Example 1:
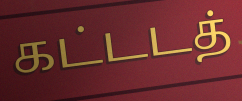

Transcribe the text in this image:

கட்டடத்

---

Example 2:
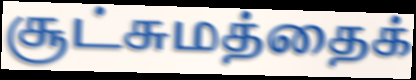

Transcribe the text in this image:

சூட்சுமத்தைக்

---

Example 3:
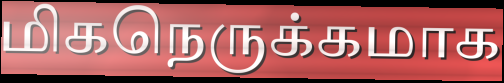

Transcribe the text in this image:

மிகநெருக்கமாக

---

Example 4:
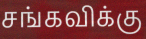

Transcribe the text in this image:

சங்கவிக்கு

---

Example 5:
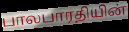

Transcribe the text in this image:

பாலபாரதியின்